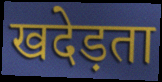
खदेड़ता